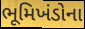
ભૂમિખંડોના